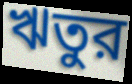
ঋতুর